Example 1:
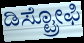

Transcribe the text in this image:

ಡಿಸ್ಟ್ರೋಫಿ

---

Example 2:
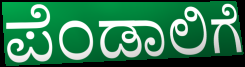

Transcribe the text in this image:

ಪೆಂಡಾಲಿಗೆ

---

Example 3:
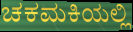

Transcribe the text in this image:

ಚಕಮಕಿಯಲ್ಲಿ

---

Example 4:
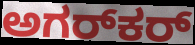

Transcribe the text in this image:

ಅಗರ್‌ಕರ್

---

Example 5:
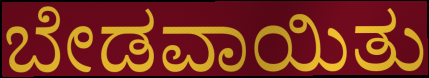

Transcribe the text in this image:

ಬೇಡವಾಯಿತು